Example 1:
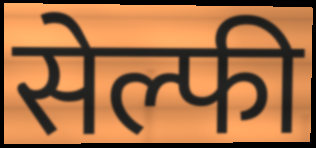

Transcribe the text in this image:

सेल्फी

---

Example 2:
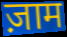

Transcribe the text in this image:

ज़ाम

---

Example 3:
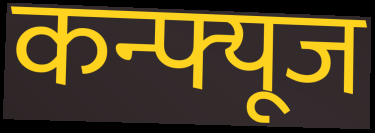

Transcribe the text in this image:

कन्फ्यूज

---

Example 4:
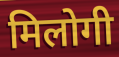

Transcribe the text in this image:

मिलोगी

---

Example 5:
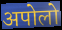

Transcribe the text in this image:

अपोलो